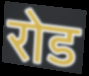
रोड